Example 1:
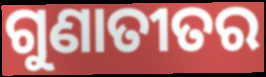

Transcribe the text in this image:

ଗୁଣାତୀତର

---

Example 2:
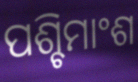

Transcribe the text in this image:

ପଶ୍ଚିମାଂଶ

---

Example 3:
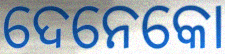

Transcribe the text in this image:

ଦେନେକୋ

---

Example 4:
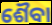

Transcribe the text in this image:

ଶୈବା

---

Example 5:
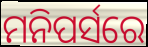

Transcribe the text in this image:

ମନିପର୍ସରେ